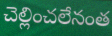
చెల్లించలేనంత